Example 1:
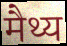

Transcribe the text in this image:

मैथ्य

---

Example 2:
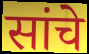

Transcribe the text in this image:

सांचे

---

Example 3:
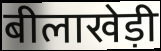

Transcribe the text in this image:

बीलाखेड़ी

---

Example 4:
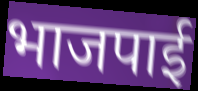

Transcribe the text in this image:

भाजपाई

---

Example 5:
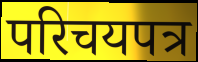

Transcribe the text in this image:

परिचयपत्र